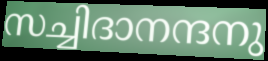
സച്ചിദാനന്ദനു